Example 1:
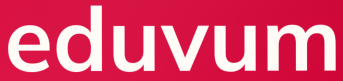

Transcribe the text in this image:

eduvum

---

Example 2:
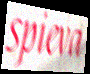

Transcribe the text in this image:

spieva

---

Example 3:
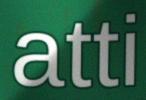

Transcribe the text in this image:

atti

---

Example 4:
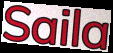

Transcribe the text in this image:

Saila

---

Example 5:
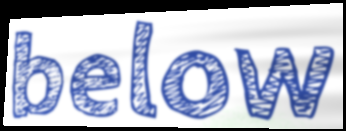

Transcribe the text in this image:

below